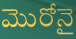
మొరోనై